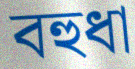
বহুধা